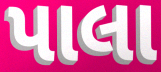
પાલા